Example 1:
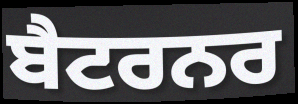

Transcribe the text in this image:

ਬੈਟਰਨਰ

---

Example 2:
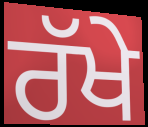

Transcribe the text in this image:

ਰੱਖੇ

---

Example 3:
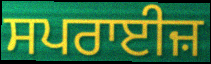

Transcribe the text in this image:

ਸਪਰਾਈਜ਼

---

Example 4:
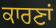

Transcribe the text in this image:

ਕਾਰਣਾਂ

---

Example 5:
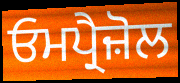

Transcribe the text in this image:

ਓਮਪ੍ਰੈਜ਼ੋਲ